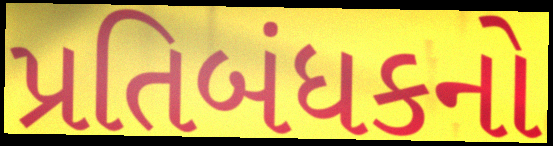
પ્રતિબંધકનો